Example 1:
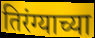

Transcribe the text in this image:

तिरंग्याच्या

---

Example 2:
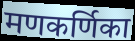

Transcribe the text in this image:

मणकर्णिका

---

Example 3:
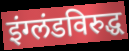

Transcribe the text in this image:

इंग्लंडविरुद्ध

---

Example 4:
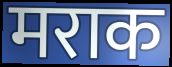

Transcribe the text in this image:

मराक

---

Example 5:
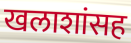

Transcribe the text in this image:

खलाशांसह